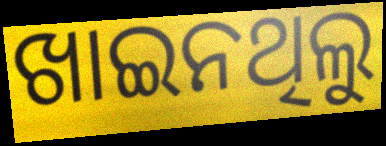
ଖାଇନଥିଲୁ